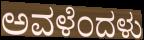
ಅವಳೆಂದಳು